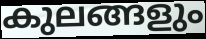
കുലങ്ങളും